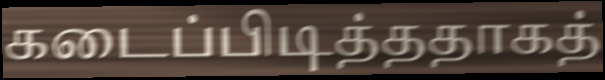
கடைப்பிடித்ததாகத்